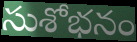
సుశోభనం